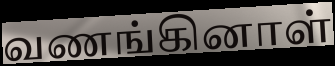
வணங்கினாள்